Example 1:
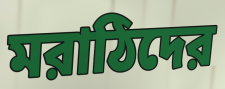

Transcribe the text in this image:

মরাঠিদের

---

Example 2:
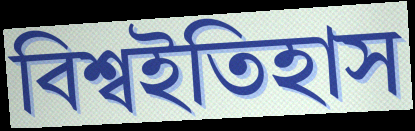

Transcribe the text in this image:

বিশ্বইতিহাস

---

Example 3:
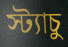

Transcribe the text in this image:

স্ট্যাচু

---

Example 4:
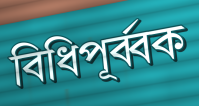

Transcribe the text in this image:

বিধিপূর্ব্বক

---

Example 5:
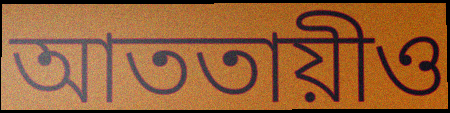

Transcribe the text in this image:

আততায়ীও